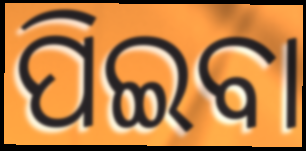
ପିଇବା